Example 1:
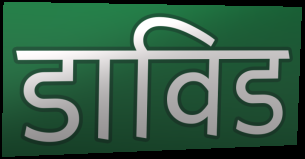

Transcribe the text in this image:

डाविड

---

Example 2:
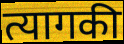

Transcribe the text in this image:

त्यागकी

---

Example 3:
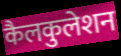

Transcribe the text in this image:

कैलकुलेशन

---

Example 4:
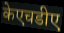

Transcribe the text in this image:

केएचडीए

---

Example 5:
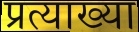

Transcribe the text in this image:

प्रत्याख्या